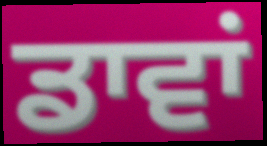
ਡਾਵਾਂ